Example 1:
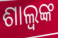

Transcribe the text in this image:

ଶାଲ୍ୱଙ୍କ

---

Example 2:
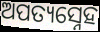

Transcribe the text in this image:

ଅପତ୍ୟସ୍ନେହ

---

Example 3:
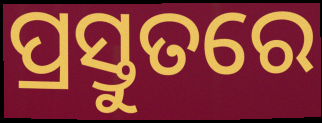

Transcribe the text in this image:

ପ୍ରସ୍ତୁତରେ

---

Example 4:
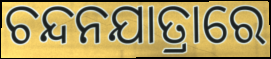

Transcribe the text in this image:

ଚନ୍ଦନଯାତ୍ରାରେ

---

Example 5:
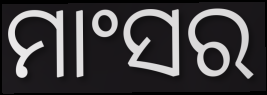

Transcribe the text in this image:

ମାଂସର